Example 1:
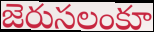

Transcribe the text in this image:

జెరుసలంకూ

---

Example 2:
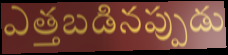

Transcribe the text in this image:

ఎత్తబడినప్పుడు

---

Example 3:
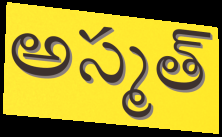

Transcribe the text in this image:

అస్మత్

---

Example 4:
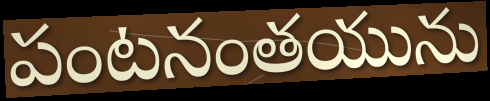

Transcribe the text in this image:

పంటనంతయును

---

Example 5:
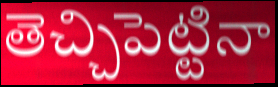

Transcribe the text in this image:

తెచ్చిపెట్టినా